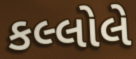
કલ્લોલે